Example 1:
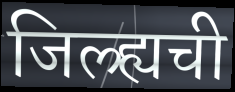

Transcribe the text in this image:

जिल्ह्यची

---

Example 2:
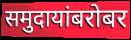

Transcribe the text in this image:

समुदायांबरोबर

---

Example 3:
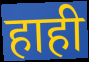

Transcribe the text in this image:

हाही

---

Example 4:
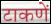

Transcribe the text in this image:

टाकणें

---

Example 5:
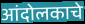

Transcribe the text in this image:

आंदोलकाचे